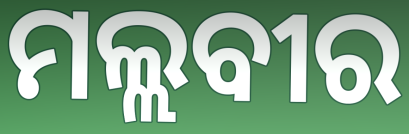
ମଲ୍ଲବୀର